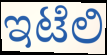
ಇಟೆಲಿ